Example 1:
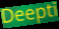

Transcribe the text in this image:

Deepti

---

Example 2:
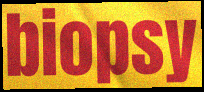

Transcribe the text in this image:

biopsy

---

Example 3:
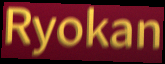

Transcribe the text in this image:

Ryokan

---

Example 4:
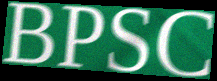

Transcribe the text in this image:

BPSC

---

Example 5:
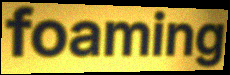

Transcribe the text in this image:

foaming